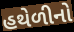
હથેળીનો